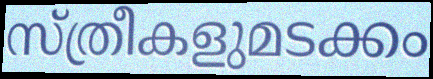
സ്ത്രീകളുമടക്കം